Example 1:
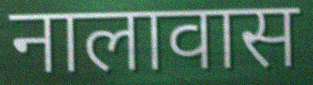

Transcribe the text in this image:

नालावास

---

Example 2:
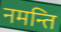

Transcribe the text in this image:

नमन्ति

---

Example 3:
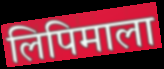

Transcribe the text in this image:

लिपिमाला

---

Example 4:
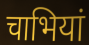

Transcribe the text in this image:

चाभियां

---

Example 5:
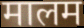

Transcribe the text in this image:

मालम